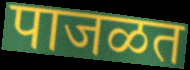
पाजळत